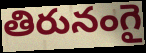
తిరునంగై